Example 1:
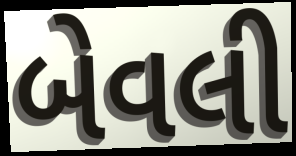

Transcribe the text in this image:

બેવલી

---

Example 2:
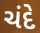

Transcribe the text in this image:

ચંદે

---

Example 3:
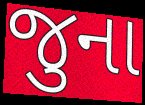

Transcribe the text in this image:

જુના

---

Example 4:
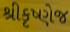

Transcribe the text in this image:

શ્રીકૃષ્ણેજ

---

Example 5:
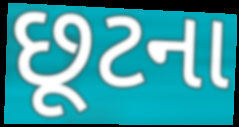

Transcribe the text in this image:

છૂટના